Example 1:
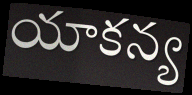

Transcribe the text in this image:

యాకన్య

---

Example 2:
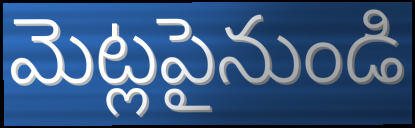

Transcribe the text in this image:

మెట్లపైనుండి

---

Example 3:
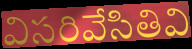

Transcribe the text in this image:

విసరివేసితివి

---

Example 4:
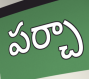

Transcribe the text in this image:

పర్చా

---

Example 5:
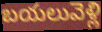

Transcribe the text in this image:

బయలువెళ్లి